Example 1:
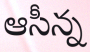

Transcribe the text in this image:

ఆసీన్న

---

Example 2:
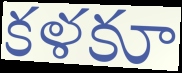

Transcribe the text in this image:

కళకూ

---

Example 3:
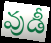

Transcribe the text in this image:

వుడీ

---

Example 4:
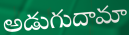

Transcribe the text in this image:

అడుగుదామా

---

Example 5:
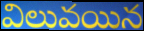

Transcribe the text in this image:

విలువయిన